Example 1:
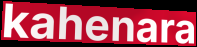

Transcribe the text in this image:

kahenara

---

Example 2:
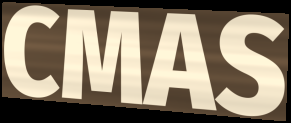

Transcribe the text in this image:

CMAS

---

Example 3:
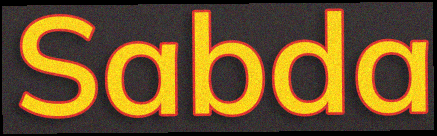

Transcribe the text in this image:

Sabda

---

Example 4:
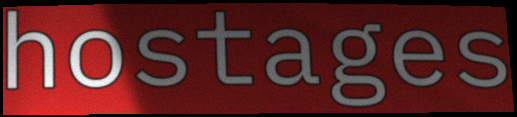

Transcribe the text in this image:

hostages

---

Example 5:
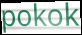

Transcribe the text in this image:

pokok